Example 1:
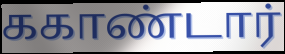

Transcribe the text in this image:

ககாண்டார்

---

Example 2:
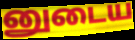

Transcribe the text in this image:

னுடைய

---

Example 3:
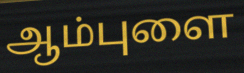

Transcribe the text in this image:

ஆம்புளை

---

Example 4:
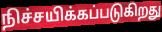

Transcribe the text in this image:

நிச்சயிக்கப்படுகிறது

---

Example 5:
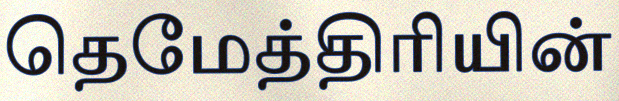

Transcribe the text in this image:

தெமேத்திரியின்